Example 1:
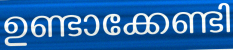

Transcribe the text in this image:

ഉണ്ടാക്കേണ്ടി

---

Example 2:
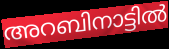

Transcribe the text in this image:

അറബിനാട്ടിൽ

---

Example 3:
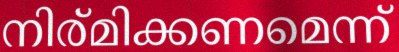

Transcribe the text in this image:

നിര്മിക്കണമെന്ന്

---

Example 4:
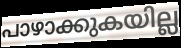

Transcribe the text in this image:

പാഴാക്കുകയില്ല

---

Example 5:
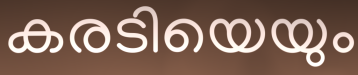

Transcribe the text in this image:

കരടിയെയും